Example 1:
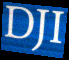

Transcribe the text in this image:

DJI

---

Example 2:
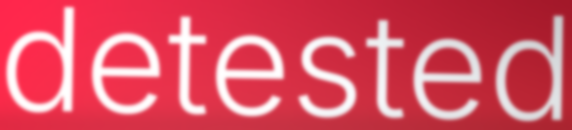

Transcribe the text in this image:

detested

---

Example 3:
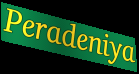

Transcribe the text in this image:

Peradeniya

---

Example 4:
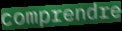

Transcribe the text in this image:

comprendre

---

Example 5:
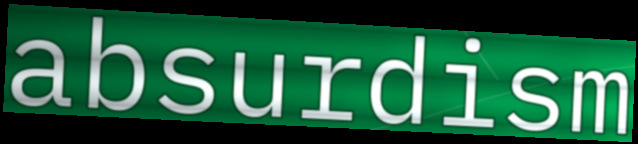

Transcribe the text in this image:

absurdism